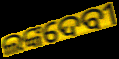
ଲଙ୍କଦେବୀ